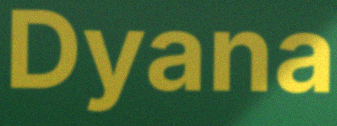
Dyana